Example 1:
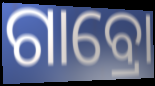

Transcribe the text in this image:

ଗାବ୍ରୋ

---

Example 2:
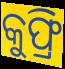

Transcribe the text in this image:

କୁଫ୍ରି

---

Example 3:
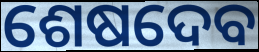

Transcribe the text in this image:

ଶେଷଦେବ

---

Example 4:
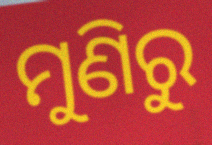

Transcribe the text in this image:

ମୁଣିରୁ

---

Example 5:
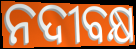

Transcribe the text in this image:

ନଦୀବକ୍ଷ